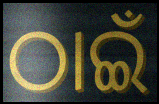
ଠାଇଁ